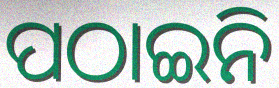
ପଠାଇନି